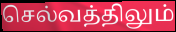
செல்வத்திலும்